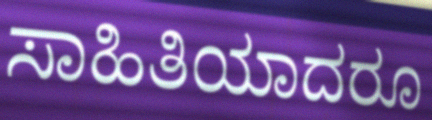
ಸಾಹಿತಿಯಾದರೂ